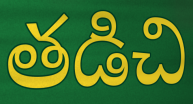
తడిచి